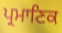
ਪ੍ਰਮਾਣਿਕ